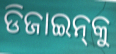
ଡିଜାଇନ୍‌କୁ